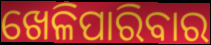
ଖେଳିପାରିବାର